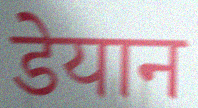
डेयान